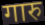
गारु